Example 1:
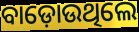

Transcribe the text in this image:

ବାଡ଼ୋଉଥିଲେ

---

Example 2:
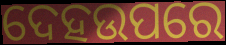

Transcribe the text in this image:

ଦେହଉପରେ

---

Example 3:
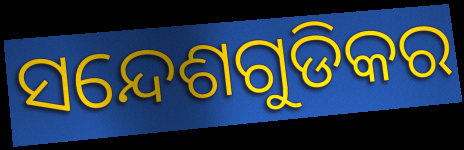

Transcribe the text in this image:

ସନ୍ଦେଶଗୁଡିକର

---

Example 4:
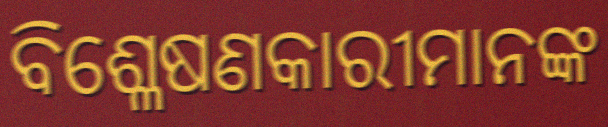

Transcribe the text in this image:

ବିଶ୍ଳେଷଣକାରୀମାନଙ୍କ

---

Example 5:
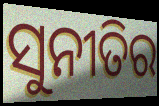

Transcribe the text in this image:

ସୁନୀତିର